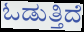
ಓಡುತ್ತಿದೆ